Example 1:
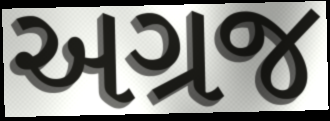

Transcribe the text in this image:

અગ્રજ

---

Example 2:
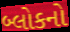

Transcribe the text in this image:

બ્લોકનો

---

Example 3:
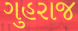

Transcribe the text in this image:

ગુહરાજ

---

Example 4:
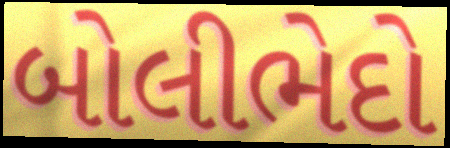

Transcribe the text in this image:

બોલીભેદો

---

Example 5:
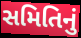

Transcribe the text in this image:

સમિતિનું